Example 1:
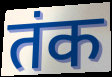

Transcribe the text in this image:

तंक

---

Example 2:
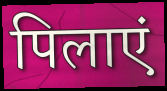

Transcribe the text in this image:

पिलाएं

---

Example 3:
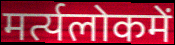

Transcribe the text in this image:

मर्त्यलोकमें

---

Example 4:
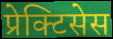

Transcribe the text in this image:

प्रेक्टिसेस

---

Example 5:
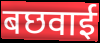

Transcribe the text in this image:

बछवाई